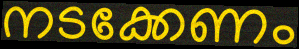
നടക്കേണം